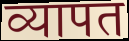
व्यापत